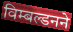
विम्बल्डनने